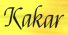
Kakar